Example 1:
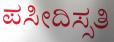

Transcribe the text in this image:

ಪಸೀದಿಸ್ಸತಿ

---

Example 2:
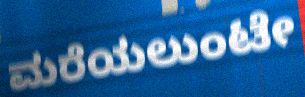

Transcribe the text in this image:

ಮರೆಯಲುಂಟೇ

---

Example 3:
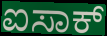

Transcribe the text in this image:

ಐಸಾಕ್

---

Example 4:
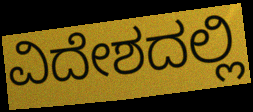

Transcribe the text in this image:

ವಿದೇಶದಲ್ಲಿ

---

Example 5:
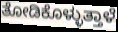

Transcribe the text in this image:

ತೋಡಿಕೊಳ್ಳುತ್ತಾಳೆ